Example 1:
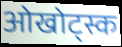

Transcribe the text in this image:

ओखोट्स्क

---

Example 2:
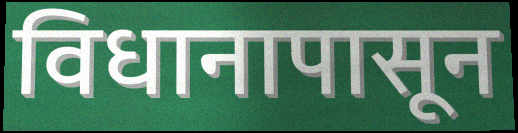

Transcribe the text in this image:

विधानापासून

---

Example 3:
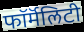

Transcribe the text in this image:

फॉर्मॅलिटी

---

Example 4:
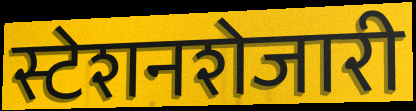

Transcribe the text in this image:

स्टेशनशेजारी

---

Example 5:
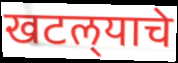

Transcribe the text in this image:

खटल्याचे